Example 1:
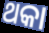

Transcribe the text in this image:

ଥକା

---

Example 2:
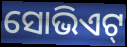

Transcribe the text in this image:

ସୋଭିଏଟ୍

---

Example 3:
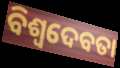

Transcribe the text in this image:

ବିଶ୍ୱଦେବତା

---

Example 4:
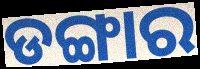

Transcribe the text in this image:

ଡଙ୍ଗାର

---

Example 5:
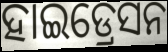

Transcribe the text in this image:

ହାଇଡ୍ରେସନ